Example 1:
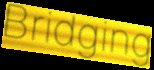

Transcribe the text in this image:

Bridging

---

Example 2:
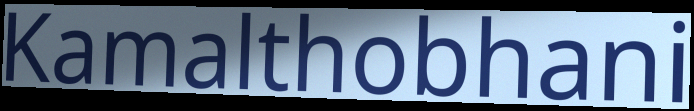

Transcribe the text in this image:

Kamalthobhani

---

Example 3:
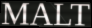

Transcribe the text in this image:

MALT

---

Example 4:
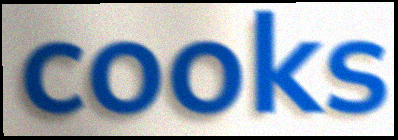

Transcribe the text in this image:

cooks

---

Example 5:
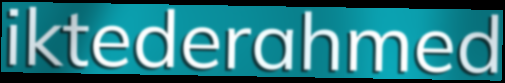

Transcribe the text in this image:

iktederahmed